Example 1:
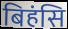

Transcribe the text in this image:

बिहंसि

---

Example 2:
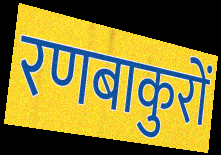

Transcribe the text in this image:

रणबाकुरों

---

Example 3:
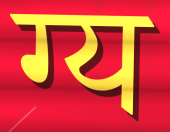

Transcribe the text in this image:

ग्य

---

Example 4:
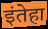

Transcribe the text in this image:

इंतेहा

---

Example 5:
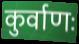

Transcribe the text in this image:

कुर्वाणः